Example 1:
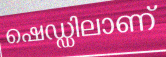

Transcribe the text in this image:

ഷെഡ്ഡിലാണ്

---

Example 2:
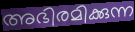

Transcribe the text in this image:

അഭിരമിക്കുന്ന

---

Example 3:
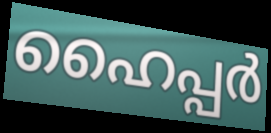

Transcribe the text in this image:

ഹൈപ്പർ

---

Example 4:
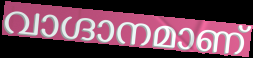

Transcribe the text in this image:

വാഗ്ദാനമാണ്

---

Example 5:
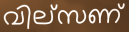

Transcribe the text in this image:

വില്സണ്